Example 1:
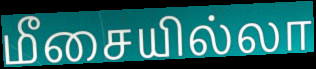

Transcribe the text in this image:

மீசையில்லா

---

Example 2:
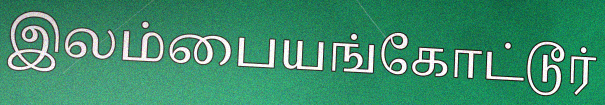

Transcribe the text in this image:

இலம்பையங்கோட்டூர்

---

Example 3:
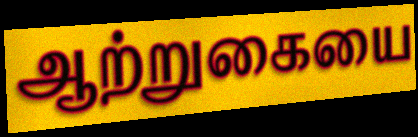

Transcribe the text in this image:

ஆற்றுகையை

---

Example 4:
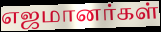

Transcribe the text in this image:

எஜமானர்கள்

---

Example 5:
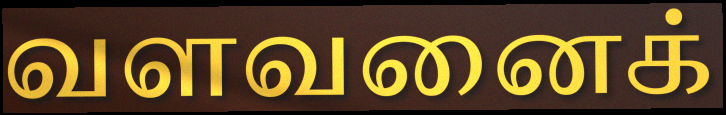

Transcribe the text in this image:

வளவனைக்